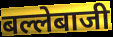
बल्लेबाजी